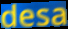
desa